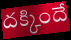
దక్కిందే